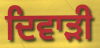
ਦਿਵਾੜੀ